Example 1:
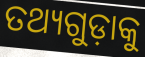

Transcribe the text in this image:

ତଥ୍ୟଗୁଡ଼ାକୁ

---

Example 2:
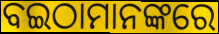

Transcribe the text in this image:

ବଇଠାମାନଙ୍କରେ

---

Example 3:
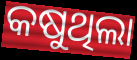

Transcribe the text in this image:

କଷୁଥିଲା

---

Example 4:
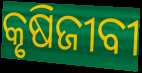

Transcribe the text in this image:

କୃଷିଜୀବୀ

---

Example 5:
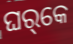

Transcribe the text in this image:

ଘର୍‌କେ